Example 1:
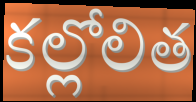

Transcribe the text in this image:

కల్లోలిత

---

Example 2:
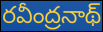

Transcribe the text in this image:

రవీంద్రనాథ్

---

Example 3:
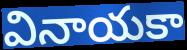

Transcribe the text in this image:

వినాయకా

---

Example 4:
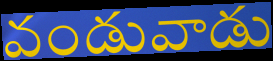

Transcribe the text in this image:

వండువాడు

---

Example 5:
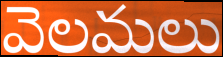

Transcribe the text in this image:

వెలమలు